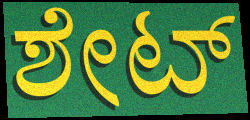
ಶೇಟ್